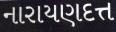
નારાયણદત્ત